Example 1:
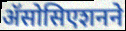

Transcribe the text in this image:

ॲसोसिएशनने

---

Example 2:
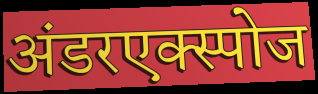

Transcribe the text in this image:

अंडरएक्स्पोज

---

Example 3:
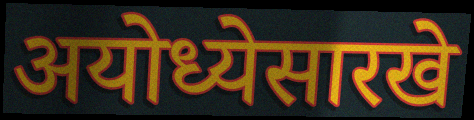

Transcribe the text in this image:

अयोध्येसारखे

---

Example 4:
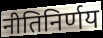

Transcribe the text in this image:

नीतिनिर्णय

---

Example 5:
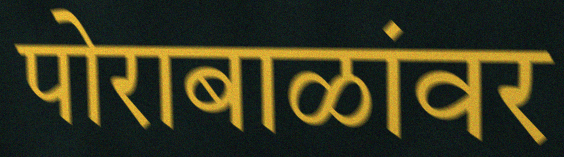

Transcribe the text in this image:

पोराबाळांवर